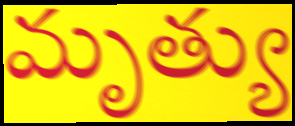
మృత్యు